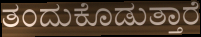
ತಂದುಕೊಡುತ್ತಾರೆ